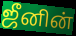
ஜீனின்